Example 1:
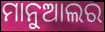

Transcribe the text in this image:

ମାନୁଆଲର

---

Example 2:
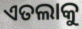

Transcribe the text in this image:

ଏତଲାକୁ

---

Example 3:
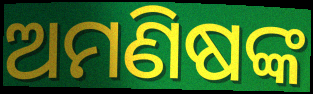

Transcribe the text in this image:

ଅମଣିଷଙ୍କ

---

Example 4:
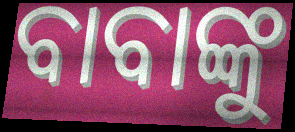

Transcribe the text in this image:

ବାବାଙ୍କୁ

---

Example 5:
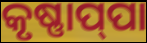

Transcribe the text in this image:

କୃଷ୍ଣାପ୍‌ପା